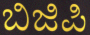
ಬಿಜಿಪಿ